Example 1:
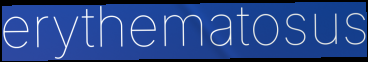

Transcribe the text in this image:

erythematosus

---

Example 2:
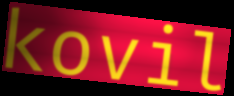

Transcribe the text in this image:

kovil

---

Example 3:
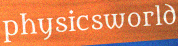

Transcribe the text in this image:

physicsworld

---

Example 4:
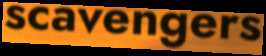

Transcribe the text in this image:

scavengers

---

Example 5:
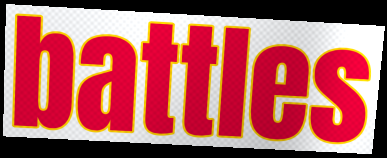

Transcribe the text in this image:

battles